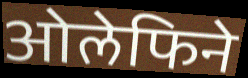
ओलेफिने